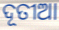
ଦୂତୀଆ